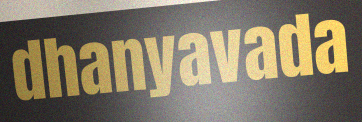
dhanyavada